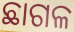
ଛାଗଳ